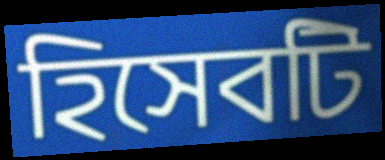
হিসেবটি